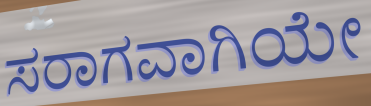
ಸರಾಗವಾಗಿಯೇ